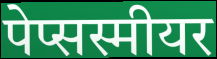
पेप्सस्मीयर